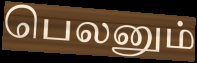
பெலனும்